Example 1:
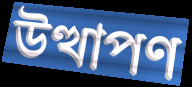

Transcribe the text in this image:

উত্থাপণ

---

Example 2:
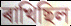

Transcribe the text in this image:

ৰাখিছিল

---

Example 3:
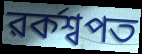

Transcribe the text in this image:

ৱৰ্কশ্বপত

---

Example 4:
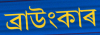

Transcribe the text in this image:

ব্ৰাউংকাৰ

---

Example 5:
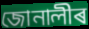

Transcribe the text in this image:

জোনালীৰ